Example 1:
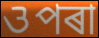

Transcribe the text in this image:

ওপৰা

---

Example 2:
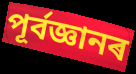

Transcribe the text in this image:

পূৰ্বজ্ঞানৰ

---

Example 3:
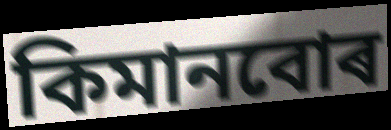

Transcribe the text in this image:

কিমানবোৰ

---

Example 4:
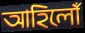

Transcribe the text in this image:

আহিলোঁ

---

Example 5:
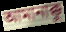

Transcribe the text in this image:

আমানাক্কু